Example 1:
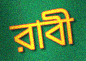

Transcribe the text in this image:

রাবী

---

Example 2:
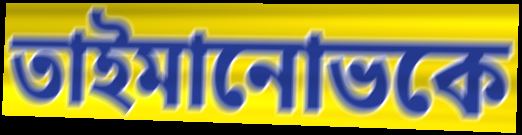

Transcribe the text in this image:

তাইমানোভকে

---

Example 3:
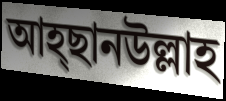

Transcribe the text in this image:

আহ্ছানউল্লাহ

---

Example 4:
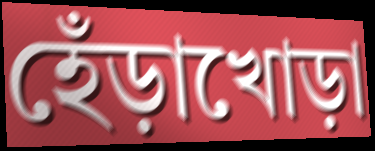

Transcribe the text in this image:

হেঁড়াখোড়া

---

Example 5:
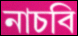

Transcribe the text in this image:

নাচবি